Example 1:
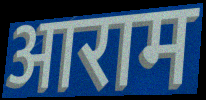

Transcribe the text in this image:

आराम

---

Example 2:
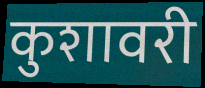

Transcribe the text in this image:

कुशावरी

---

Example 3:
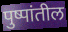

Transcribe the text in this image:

पुष्पांतील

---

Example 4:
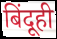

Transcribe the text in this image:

बिंदूही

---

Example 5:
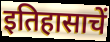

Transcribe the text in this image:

इतिहासाचें